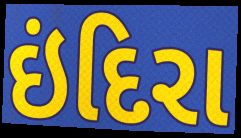
ઇંદિરા